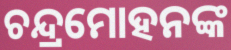
ଚନ୍ଦ୍ରମୋହନଙ୍କ